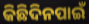
କିଛିଦିନପାଇଁ